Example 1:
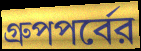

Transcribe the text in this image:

গ্রুপপর্বের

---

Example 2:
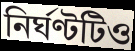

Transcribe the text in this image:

নির্ঘণ্টটিও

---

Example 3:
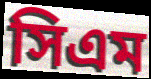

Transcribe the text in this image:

সিএম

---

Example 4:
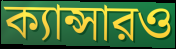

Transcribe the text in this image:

ক্যান্সারও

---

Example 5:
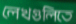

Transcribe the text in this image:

লেখগুলিতে